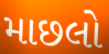
માછલો